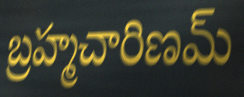
బ్రహ్మచారిణమ్